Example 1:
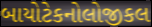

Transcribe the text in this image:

બાયોટેકનોલોજીકલ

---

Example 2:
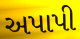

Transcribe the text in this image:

અપાપી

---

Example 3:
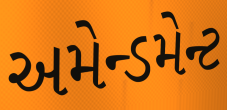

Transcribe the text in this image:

અમેન્ડમેન્ટ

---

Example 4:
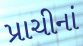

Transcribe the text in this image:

પ્રાચીનાં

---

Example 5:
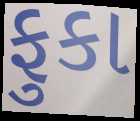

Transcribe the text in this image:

ફુકા